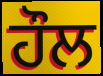
ਹੌਲ